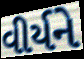
વીર્યને